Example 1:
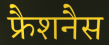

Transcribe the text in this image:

फ्रैशनैस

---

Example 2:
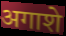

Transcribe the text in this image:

अगाशे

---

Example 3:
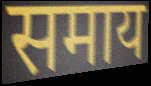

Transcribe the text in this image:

समाय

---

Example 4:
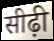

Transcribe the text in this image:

सीढ़ी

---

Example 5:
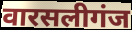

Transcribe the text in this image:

वारसलीगंज